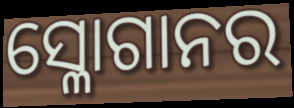
ସ୍ଳୋଗାନର